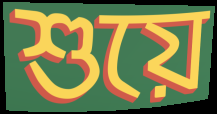
শুয়ে